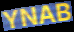
YNAB